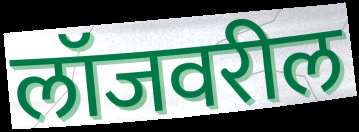
लॉजवरील